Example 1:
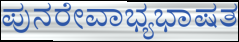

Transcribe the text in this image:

ಪುನರೇವಾಭ್ಯಭಾಷತ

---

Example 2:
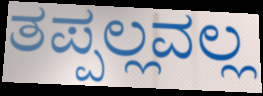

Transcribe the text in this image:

ತಪ್ಪಲ್ಲವಲ್ಲ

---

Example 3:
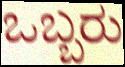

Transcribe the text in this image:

ಒಬ್ಬರು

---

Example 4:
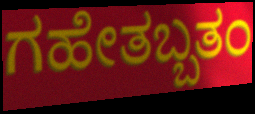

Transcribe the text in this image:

ಗಹೇತಬ್ಬತಂ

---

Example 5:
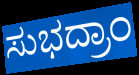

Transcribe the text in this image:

ಸುಭದ್ರಾಂ